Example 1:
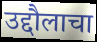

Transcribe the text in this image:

उद्दौलाचा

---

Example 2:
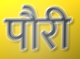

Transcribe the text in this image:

पौरी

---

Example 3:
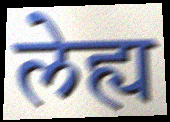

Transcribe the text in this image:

लेह्य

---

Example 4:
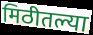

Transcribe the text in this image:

मिठीतल्या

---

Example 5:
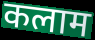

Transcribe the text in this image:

कलाम